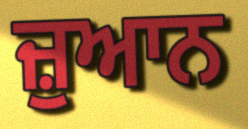
ਜ਼ੁਆਨ